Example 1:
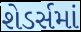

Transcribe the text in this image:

શેડર્સમાં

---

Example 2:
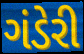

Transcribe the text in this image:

ગંડેરી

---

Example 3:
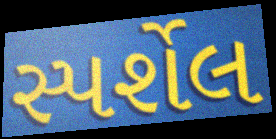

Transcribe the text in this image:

સ્પર્શેલ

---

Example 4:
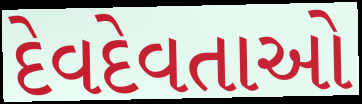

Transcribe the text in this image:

દેવદેવતાઓ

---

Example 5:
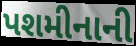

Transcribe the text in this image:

પશમીનાની